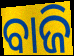
ବାଜି